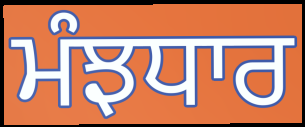
ਮੰਝਧਾਰ